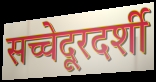
सच्चेदूरदर्शी